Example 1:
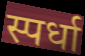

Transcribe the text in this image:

स्पर्धा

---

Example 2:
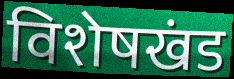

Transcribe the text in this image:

विशेषखंड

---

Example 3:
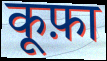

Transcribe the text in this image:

कूफ़ा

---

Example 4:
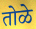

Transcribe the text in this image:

तोळे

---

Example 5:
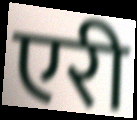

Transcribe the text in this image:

एरी